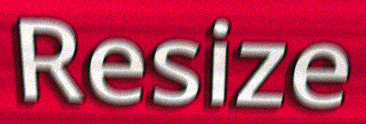
Resize